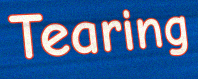
Tearing